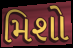
મિશો